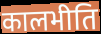
कालभीति